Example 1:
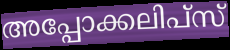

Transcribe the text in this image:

അപ്പോക്കലിപ്സ്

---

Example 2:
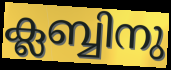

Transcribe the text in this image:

ക്ലബ്ബിനു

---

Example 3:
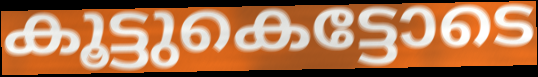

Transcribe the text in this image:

കൂട്ടുകെട്ടോടെ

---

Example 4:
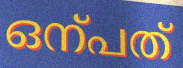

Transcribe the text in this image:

ഒന്പത്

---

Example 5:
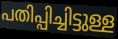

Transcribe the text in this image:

പതിപ്പിച്ചിട്ടുള്ള